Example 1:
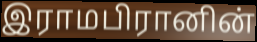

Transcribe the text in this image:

இராமபிரானின்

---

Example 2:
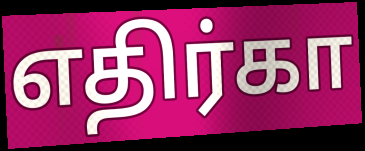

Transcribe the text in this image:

எதிர்கா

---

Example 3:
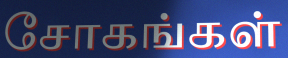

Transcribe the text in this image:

சோகங்கள்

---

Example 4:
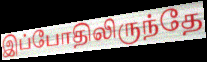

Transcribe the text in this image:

இப்போதிலிருந்தே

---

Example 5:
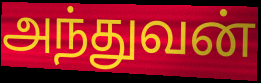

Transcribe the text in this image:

அந்துவன்